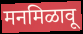
मनमिळावू